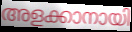
അളക്കാനായി